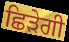
ਛਿੜੇਗੀ